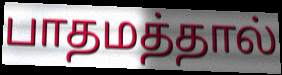
பாதமத்தால்